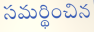
సమర్థించిన